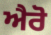
ਐਰੋ